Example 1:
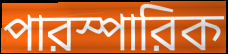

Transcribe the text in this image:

পারস্পারিক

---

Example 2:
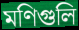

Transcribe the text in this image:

মণিগুলি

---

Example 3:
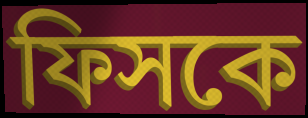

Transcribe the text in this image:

ফিসকে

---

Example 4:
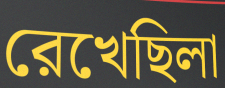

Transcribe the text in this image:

রেখেছিলা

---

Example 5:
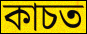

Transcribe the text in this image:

কাচত